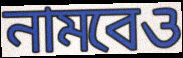
নামবেও